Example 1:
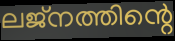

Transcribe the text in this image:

ലജ്നത്തിന്റെ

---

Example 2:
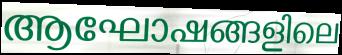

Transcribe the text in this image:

ആഘോഷങ്ങളിലെ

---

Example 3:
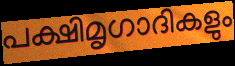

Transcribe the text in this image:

പക്ഷിമൃഗാദികളും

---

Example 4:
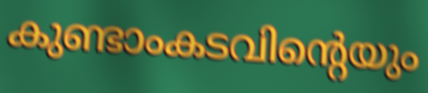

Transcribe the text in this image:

കുണ്ടാംകടവിന്റെയും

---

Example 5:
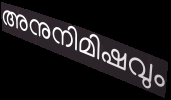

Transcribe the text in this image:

അനുനിമിഷവും